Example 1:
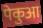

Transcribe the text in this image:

पेकुआ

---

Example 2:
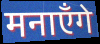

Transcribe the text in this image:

मनाएँगे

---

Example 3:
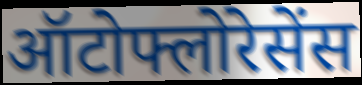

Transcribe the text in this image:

ऑटोफ्लोरेसेंस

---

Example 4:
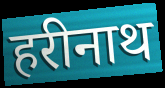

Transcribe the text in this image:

हरीनाथ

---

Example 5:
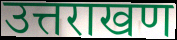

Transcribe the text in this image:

उत्तराखण